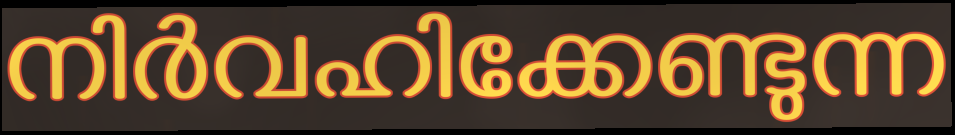
നിർവഹിക്കേണ്ടുന്ന